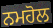
ਨਮਹੋਲ